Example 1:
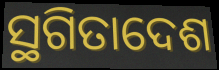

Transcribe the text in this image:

ସ୍ଥଗିତାଦେଶ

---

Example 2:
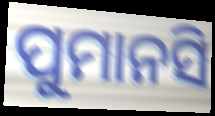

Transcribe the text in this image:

ପୁମାନସି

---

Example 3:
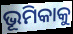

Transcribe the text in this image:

ଭୂମିକାକୁ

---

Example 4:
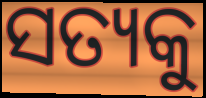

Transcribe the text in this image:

ସତ୍ୟକୁ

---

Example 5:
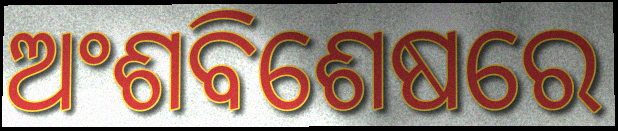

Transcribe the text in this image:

ଅଂଶବିଶେଷରେ